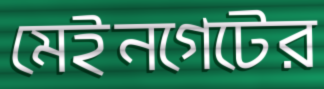
মেইনগেটের